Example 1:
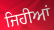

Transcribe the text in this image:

ਜਿਹੀਆਂ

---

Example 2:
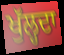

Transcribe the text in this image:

ਖੁੱਲ੍ਹਦਾ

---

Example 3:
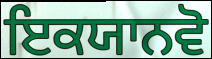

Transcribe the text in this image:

ਇਕਯਾਨਵੋ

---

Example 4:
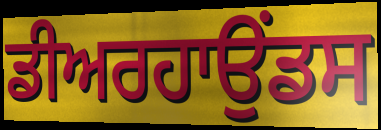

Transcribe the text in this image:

ਡੀਅਰਹਾਉਂਡਸ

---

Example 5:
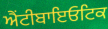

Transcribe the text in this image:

ਐਂਟੀਬਾਇਓਟਿਕ